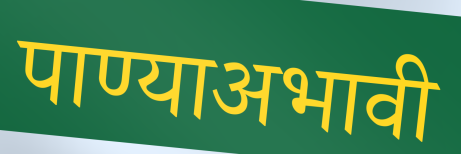
पाण्याअभावी